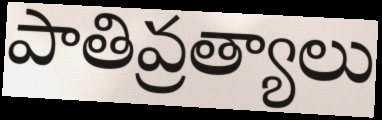
పాతివ్రత్యాలు